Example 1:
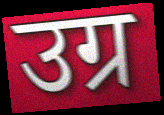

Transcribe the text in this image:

उग्र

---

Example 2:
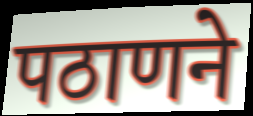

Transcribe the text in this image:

पठाणने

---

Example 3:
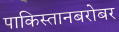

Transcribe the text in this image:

पाकिस्तानबरोबर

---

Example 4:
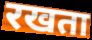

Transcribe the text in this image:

रखता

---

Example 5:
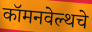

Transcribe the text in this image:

कॉमनवेल्थचे